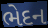
ભેદન